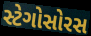
સ્ટેગોસોરસ